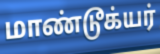
மாண்டூக்யர்